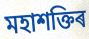
মহাশক্তিৰ